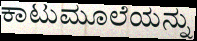
ಕಾಟುಮೂಲೆಯನ್ನು